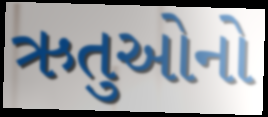
ઋતુઓનો